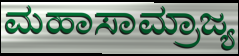
ಮಹಾಸಾಮ್ರಾಜ್ಯ